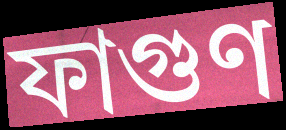
ফাগুণ